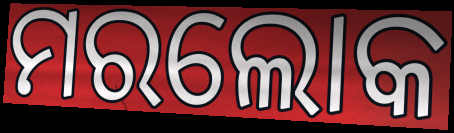
ମରଲୋକ